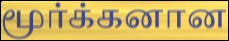
மூர்க்கனான